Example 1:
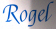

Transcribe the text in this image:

Rogel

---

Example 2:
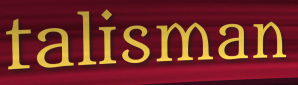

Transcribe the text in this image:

talisman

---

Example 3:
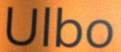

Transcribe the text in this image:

Ulbo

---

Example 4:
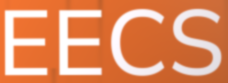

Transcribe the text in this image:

EECS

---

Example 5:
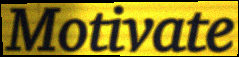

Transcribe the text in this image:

Motivate